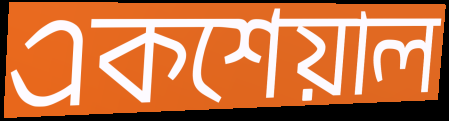
একশেয়াল